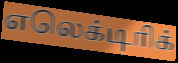
எலெக்டிரிக்